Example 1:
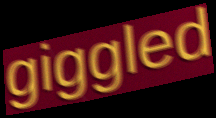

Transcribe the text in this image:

giggled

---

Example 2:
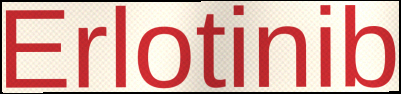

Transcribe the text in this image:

Erlotinib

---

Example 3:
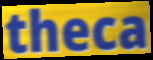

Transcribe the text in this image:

theca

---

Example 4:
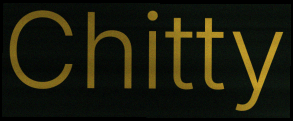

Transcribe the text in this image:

Chitty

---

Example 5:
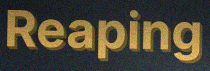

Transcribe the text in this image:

Reaping